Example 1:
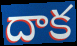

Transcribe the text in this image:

దాక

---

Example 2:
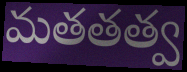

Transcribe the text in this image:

మతతత్వ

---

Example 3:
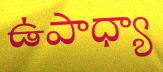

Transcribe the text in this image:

ఉపాధ్యా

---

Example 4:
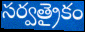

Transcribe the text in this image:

సర్వత్రైకం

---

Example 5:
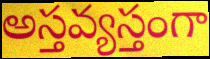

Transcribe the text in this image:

అస్తవ్యస్తంగా